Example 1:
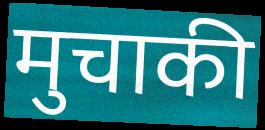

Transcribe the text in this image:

मुचाकी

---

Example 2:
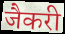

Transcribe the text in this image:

जैकरी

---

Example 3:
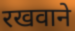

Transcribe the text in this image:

रखवाने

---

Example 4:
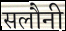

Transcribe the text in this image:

सलौनी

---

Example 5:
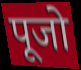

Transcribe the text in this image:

पूजो